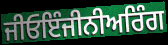
ਜੀਓਇੰਜੀਨੀਅਰਿੰਗ